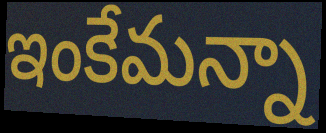
ఇంకేమన్నా